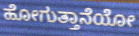
ಹೋಗುತ್ತಾನೆಯೋ